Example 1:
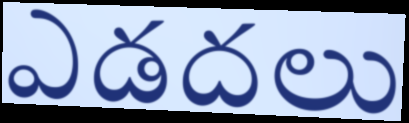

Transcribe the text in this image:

ఎడదలు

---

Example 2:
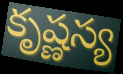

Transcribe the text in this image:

కృష్ణస్య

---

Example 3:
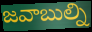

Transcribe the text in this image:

జవాబుల్ని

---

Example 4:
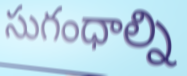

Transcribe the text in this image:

సుగంధాల్ని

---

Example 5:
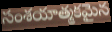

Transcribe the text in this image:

సంశయాత్మకమైన